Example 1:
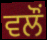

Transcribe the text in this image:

ਵਲੌੰ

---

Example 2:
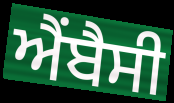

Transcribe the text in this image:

ਐਂਬੈਸੀ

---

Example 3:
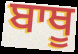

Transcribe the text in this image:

ਬਾਥੂ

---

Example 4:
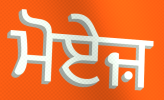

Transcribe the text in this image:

ਮੋਏਜ਼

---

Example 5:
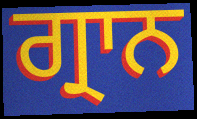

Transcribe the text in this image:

ਗ੍ਰਾਨ